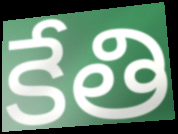
కేతి